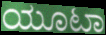
ಯೂಟಾ